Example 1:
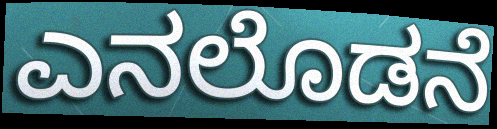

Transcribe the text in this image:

ಎನಲೊಡನೆ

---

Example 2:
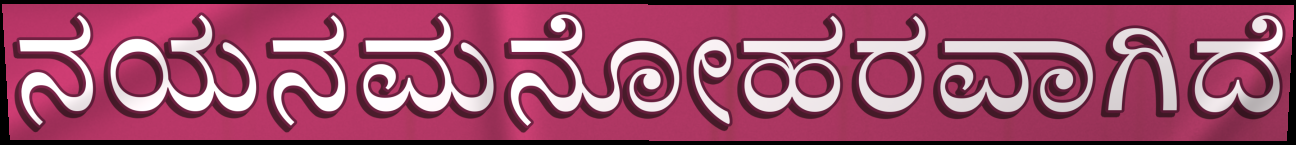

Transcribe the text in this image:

ನಯನಮನೋಹರವಾಗಿದೆ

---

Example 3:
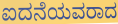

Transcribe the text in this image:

ಐದನೆಯವರಾದ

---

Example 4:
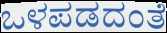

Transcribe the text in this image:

ಒಳಪಡದಂತೆ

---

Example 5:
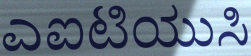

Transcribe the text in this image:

ಎಐಟಿಯುಸಿ